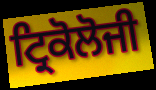
ਟ੍ਰਿਕੋਲੋਜੀ